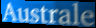
Australe